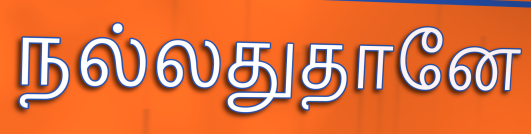
நல்லதுதானே